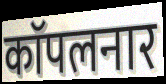
कॉपलनार